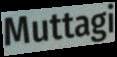
Muttagi